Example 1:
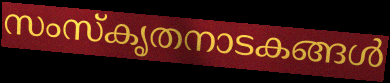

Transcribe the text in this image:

സംസ്കൃതനാടകങ്ങൾ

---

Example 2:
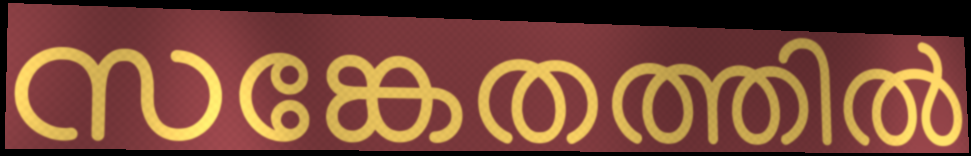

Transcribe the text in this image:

സങ്കേതത്തിൽ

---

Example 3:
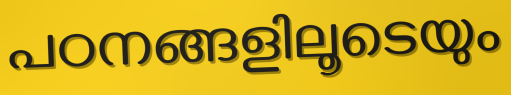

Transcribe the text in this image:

പഠനങ്ങളിലൂടെയും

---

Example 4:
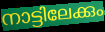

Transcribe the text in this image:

നാട്ടിലേക്കും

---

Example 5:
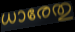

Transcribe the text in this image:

ധാരേതു